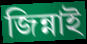
জিন্নাই